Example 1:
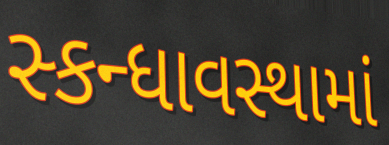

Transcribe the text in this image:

સ્કન્ધાવસ્થામાં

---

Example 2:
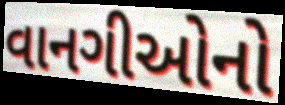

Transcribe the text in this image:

વાનગીઓનો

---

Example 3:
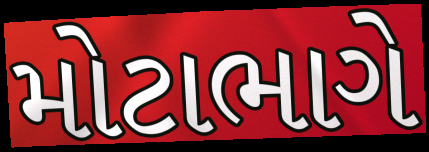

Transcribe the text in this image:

મોટાભાગે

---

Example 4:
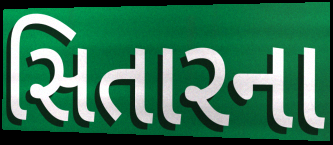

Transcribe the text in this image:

સિતારના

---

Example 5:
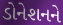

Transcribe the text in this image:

ડોનેશનને